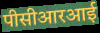
पीसीआरआई